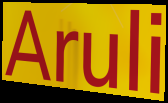
Aruli